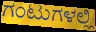
ಗಂಟುಗಳಲ್ಲಿ